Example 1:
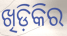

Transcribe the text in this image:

ଖିଡ଼ିକିର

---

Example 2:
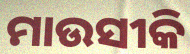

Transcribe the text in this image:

ମାଉସୀକି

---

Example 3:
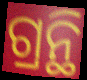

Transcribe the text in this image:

ଗ୍ରନ୍ଥି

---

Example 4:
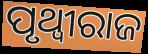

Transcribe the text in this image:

ପୃଥ୍ୱୀରାଜ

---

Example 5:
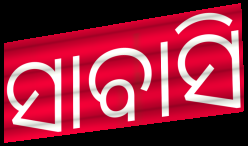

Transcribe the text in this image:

ସାବାସି